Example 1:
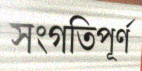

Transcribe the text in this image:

সংগতিপূৰ্ণ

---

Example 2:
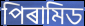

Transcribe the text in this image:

পিৰামিড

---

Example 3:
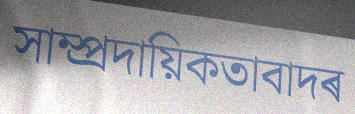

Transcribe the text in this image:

সাম্প্ৰদায়িকতাবাদৰ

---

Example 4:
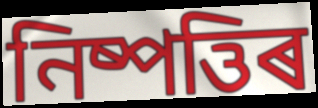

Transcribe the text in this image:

নিষ্পত্তিৰ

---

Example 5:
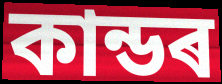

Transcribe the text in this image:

কান্ডৰ